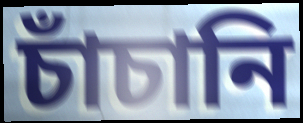
চাঁচানি